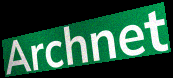
Archnet